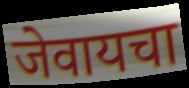
जेवायचा